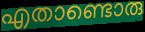
എതാണ്ടൊരു